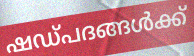
ഷഡ്പദങ്ങൾക്ക്